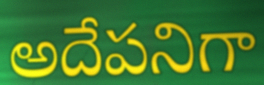
అదేపనిగా